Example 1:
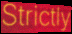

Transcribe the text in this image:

Strictly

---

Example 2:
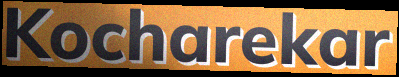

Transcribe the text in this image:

Kocharekar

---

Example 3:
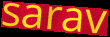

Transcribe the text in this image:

sarav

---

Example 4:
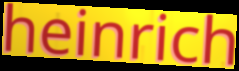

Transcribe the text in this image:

heinrich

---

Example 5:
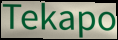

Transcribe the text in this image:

Tekapo